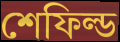
শেফিল্ড